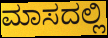
ಮಾಸದಲ್ಲಿ